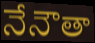
నేనౌతా